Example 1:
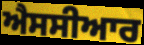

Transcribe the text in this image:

ਐਸਸੀਆਰ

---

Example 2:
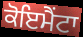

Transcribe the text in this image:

ਕੋਇਮੈਂਟਾ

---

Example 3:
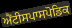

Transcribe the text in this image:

ਐਂਟੀਸਪਾਸਪੋਡਿਕ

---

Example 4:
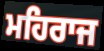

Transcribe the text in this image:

ਮਹਿਰਾਜ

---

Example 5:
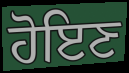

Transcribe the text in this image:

ਹੋਇਣ